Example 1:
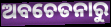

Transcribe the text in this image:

ଅବଚେତନାରୁ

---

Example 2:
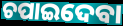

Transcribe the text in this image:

ଚପାଇଦେବା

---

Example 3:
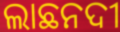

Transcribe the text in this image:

ଲାଛନଦୀ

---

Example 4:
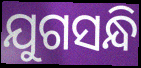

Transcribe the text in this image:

ଯୁଗସନ୍ଧି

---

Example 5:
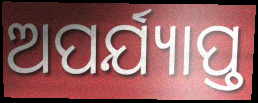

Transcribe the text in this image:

ଅପର୍ଯ୍ୟାପ୍ତ